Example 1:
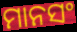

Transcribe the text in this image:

ମାନସଂ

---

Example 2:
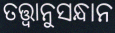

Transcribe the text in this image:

ତତ୍ତ୍ବାନୁସନ୍ଧାନ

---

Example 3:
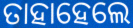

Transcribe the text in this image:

ତାହାହେଲେ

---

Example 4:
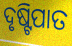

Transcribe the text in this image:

ଦୃଷ୍ଟିପାତ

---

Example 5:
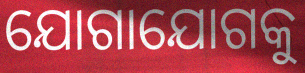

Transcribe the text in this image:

ଯୋଗାଯୋଗକୁ